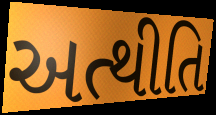
અત્થીતિ